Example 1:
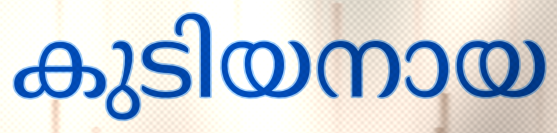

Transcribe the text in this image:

കുടിയനായ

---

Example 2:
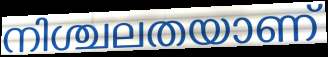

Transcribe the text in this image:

നിശ്ചലതയാണ്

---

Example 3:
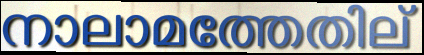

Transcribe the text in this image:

നാലാമത്തേതില്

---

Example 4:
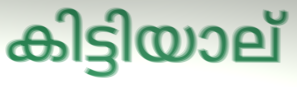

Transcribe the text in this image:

കിട്ടിയാല്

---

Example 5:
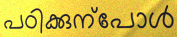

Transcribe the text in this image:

പഠിക്കുന്പോൾ